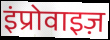
इंप्रोवाइज़